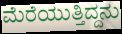
ಮೆರೆಯುತ್ತಿದ್ದನು